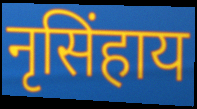
नृसिंहाय